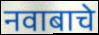
नवाबाचे